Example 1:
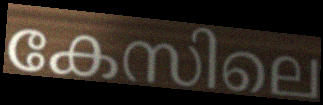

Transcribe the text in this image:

കേസിലെ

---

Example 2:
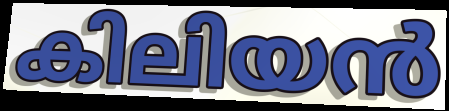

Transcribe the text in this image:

കിലിയൻ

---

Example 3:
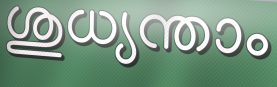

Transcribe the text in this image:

ശുധ്യന്താം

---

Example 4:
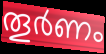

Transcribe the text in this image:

തൂർണം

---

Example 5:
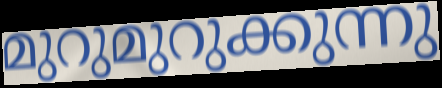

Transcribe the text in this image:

മുറുമുറുക്കുന്നു